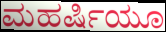
ಮಹರ್ಷಿಯೂ